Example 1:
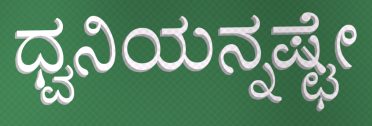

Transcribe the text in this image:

ಧ್ವನಿಯನ್ನಷ್ಟೇ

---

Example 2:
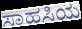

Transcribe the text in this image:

ಸಾಹಸಿಯ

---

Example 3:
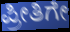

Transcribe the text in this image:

ಪ್ರೀತಿಗೇ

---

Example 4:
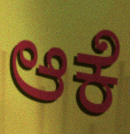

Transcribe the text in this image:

ಆಕೆ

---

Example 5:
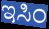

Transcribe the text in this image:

ಇಸಿಂ